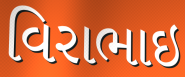
વિરાભાઇ